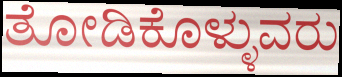
ತೋಡಿಕೊಳ್ಳುವರು